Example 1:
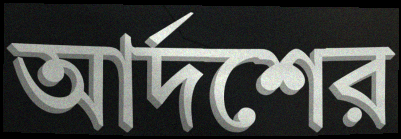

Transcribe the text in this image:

আর্দশের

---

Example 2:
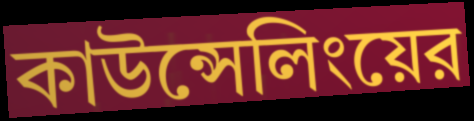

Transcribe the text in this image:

কাউন্সেলিংয়ের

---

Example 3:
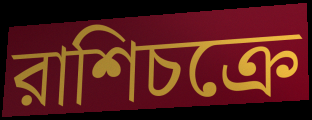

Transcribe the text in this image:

রাশিচক্রে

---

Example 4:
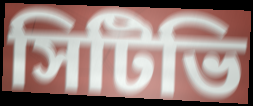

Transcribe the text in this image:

সিটিভি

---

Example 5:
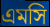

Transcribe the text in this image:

এমসি